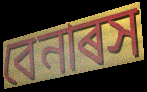
বেনাৰস